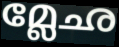
മ്ലേഛ